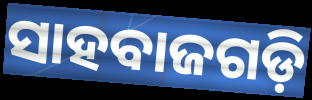
ସାହବାଜଗଡ଼ି